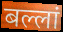
बल्लां